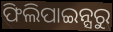
ଫିଲିପାଇନ୍ସରୁ